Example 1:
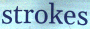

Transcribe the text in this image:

strokes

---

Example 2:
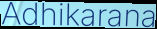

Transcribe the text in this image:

Adhikarana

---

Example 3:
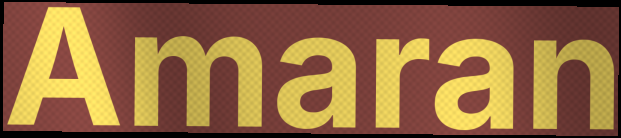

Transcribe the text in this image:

Amaran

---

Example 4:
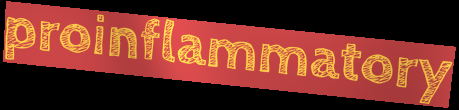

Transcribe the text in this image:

proinflammatory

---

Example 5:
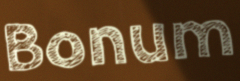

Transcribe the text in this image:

Bonum